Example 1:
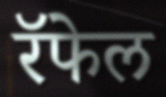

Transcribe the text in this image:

रॅफेल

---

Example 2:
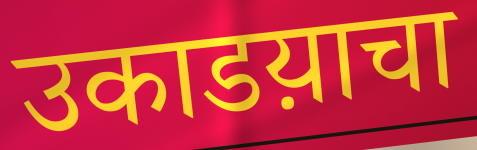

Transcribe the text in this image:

उकाडय़ाचा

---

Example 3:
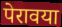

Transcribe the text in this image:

पेरावया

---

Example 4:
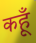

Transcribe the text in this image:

कहूँ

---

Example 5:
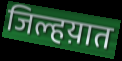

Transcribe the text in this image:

जिल्हय़ात